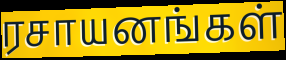
ரசாயனங்கள்